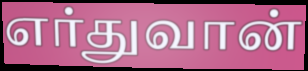
எர்துவான்